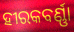
ହୀରକବର୍ଣ୍ଣା